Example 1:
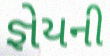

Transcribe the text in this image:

જ્ઞેયની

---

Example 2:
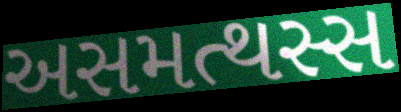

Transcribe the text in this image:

અસમત્થસ્સ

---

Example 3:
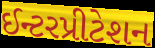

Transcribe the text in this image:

ઈન્ટરપ્રીટેશન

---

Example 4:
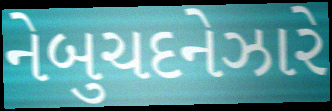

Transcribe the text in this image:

નેબુચદનેઝારે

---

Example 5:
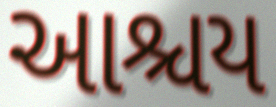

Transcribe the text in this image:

આશ્ચય